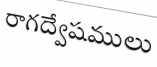
రాగద్వేషములు